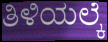
ತಿಳಿಯಲ್ಕೆ